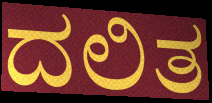
ದಲಿತ